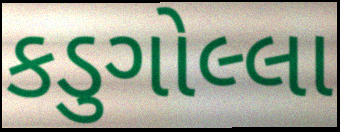
કડુગોલ્લા